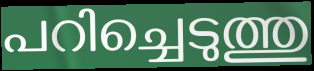
പറിച്ചെടുത്തു